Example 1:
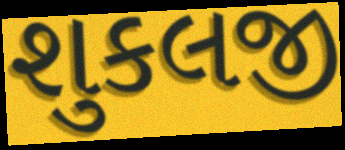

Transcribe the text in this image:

શુકલજી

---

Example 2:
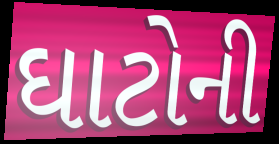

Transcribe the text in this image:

ઘાટોની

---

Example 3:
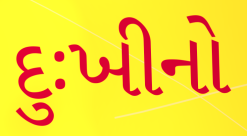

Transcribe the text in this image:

દુઃખીનો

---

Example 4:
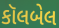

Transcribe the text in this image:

કૉલબેલ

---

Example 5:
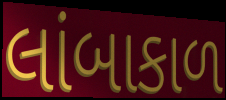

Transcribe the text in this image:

લાંબાકાળ